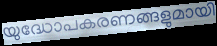
യുദ്ധോപകരണങ്ങളുമായി